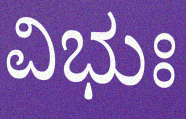
ವಿಭುಃ